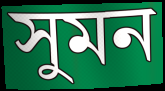
সুমন